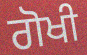
ਗੋਖੀ